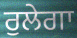
ਰੁਲੇਗਾ